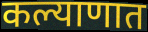
कल्याणात